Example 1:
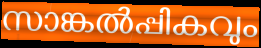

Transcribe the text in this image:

സാങ്കൽപ്പികവും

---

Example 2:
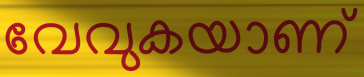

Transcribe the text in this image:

വേവുകയാണ്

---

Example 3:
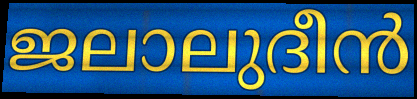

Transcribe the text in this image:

ജലാലുദീൻ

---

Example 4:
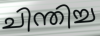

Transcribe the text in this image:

ചിന്തിച്ച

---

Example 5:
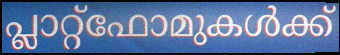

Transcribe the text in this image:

പ്ലാറ്റ്ഫോമുകൾക്ക്